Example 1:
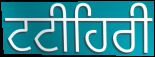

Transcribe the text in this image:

ਟਟੀਹਿਰੀ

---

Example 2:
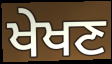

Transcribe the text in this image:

ਖੇਖਣ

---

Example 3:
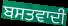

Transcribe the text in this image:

ਬਸਤਵਾਦੀ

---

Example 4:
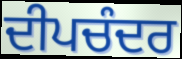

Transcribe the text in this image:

ਦੀਪਚੰਦਰ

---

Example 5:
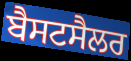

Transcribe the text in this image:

ਬੈਸਟਸੈਲਰ